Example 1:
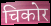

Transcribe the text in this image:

चिकोर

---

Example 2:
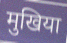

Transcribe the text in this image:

मुखिया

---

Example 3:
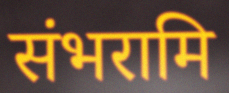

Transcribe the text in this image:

संभरामि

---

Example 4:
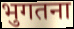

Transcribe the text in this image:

भुगतना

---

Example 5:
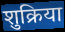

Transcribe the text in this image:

शुक्रिया